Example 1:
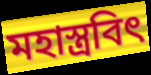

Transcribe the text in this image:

মহাস্ত্রবিৎ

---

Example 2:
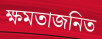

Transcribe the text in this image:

ক্ষমতাজনিত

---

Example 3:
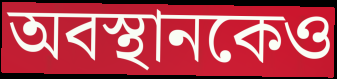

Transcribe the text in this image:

অবস্থানকেও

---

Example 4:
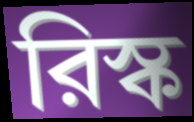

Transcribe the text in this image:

রিস্ক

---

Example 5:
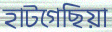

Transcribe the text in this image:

হাটগেছিয়া